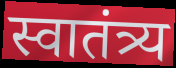
स्वातंत्र्य